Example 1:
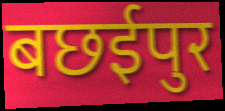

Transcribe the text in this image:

बछईपुर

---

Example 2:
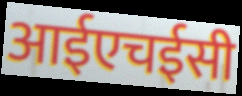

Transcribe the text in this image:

आईएचईसी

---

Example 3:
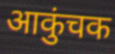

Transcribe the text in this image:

आकुंचक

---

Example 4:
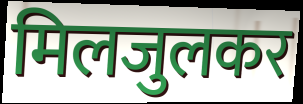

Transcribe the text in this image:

मिलजुलकर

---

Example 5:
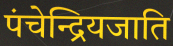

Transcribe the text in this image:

पंचेन्द्रियजाति